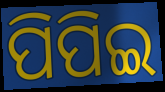
ପିପିଇ